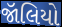
જૉલિયો